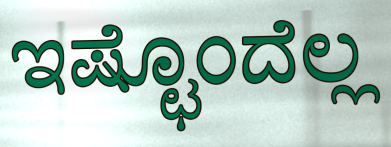
ಇಷ್ಟೊಂದೆಲ್ಲ